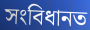
সংবিধানত